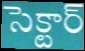
సెక్టార్